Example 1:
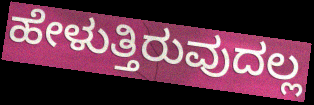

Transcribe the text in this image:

ಹೇಳುತ್ತಿರುವುದಲ್ಲ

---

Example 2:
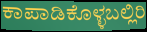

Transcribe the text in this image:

ಕಾಪಾಡಿಕೊಳ್ಳಬಲ್ಲಿರಿ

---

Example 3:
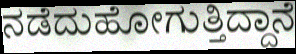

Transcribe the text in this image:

ನಡೆದುಹೋಗುತ್ತಿದ್ದಾನೆ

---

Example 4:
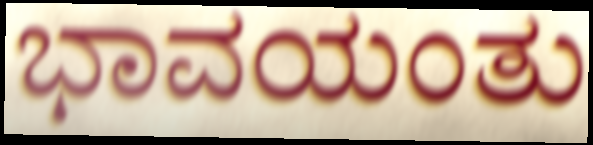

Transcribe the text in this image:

ಭಾವಯಂತು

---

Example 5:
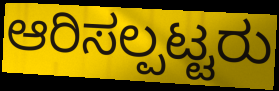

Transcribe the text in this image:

ಆರಿಸಲ್ಪಟ್ಟರು